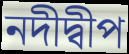
নদীদ্বীপ